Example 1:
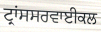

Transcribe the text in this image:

ਟ੍ਰਾਂਸਸਰਵਾਈਕਲ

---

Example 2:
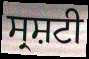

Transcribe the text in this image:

ਸ੍ਰਸ਼ਟੀ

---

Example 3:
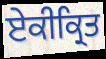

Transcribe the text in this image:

ਏਕੀਕ੍ਰਿਤ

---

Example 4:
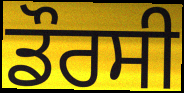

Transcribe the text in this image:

ਡੌਰਸੀ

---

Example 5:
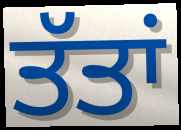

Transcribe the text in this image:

ਤੱਤਾਂ